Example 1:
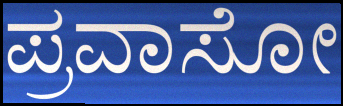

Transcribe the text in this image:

ಪ್ರವಾಸೋ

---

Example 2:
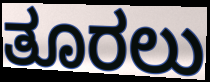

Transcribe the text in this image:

ತೂರಲು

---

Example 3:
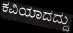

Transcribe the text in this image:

ಕವಿಯಾದದ್ದು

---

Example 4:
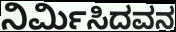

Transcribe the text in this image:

ನಿರ್ಮಿಸಿದವನ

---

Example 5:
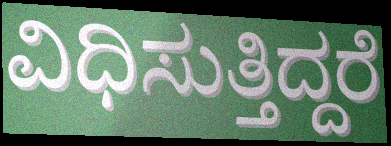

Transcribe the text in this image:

ವಿಧಿಸುತ್ತಿದ್ದರೆ